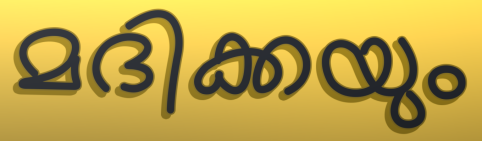
മദിക്കയും